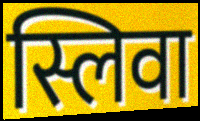
स्लिवा